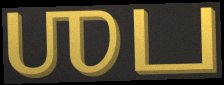
ஶப